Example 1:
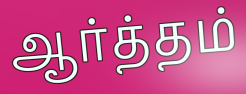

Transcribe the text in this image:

ஆர்த்தம்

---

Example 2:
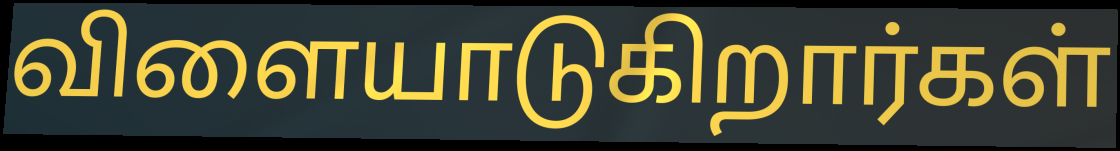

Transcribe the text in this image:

விளையாடுகிறார்கள்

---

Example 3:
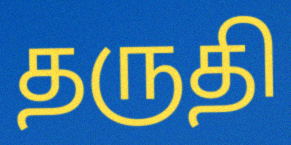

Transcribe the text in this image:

தருதி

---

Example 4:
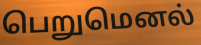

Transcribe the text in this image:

பெறுமெனல்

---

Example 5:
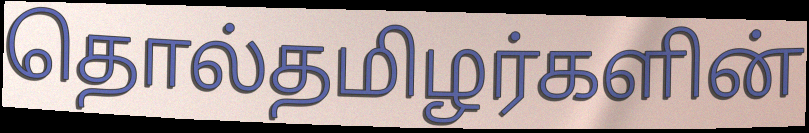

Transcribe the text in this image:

தொல்தமிழர்களின்